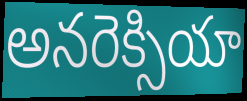
అనరెక్సియా